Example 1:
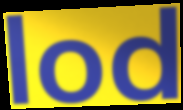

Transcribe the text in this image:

lod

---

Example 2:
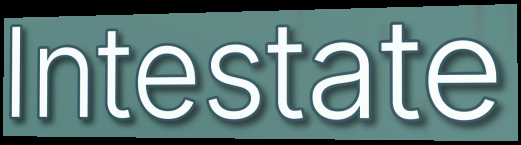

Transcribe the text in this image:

Intestate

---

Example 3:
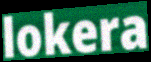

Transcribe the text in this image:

lokera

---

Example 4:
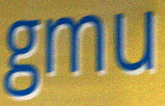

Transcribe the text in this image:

gmu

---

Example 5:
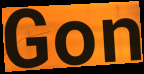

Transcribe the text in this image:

Gon